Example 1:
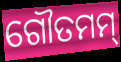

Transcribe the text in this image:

ଗୌତମମ୍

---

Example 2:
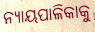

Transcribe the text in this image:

ନ୍ୟାୟପାଳିକାକୁ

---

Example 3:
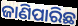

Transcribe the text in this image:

ଜାଣିପାରିଛ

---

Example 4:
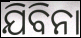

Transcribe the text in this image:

ଯିବିନା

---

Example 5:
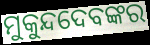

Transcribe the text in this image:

ମୁକୁନ୍ଦଦେବଙ୍କର